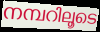
നമ്പറിലൂടെ